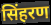
सिंहरण